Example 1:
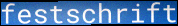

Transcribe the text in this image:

festschrift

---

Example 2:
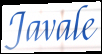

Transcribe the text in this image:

Javale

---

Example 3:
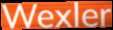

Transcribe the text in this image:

Wexler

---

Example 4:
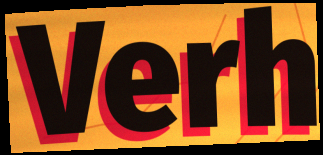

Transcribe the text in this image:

Verh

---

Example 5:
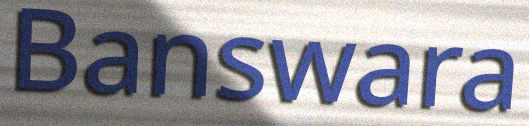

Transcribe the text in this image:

Banswara